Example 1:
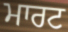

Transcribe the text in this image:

ਮਾਰਟ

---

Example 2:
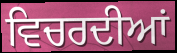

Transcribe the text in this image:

ਵਿਚਰਦੀਆਂ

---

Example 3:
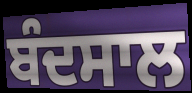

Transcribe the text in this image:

ਬੰਦਸਾਲ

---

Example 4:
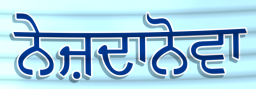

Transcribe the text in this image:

ਨੇਜ਼ਦਾਨੋਵਾ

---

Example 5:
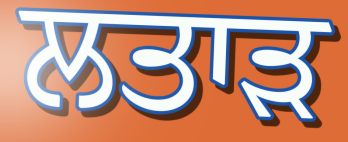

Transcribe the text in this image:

ਲਤਾੜ